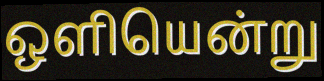
ஒளியென்று